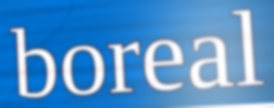
boreal